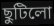
ছুটিলো